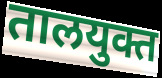
तालयुक्त